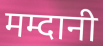
मम्दानी